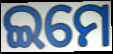
ଇମେ